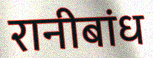
रानीबांध